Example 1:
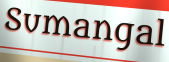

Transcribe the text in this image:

Sumangal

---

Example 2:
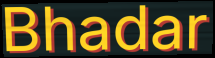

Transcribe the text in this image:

Bhadar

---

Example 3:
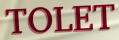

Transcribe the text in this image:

TOLET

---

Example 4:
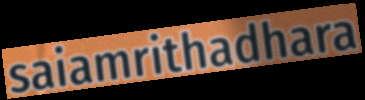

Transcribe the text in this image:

saiamrithadhara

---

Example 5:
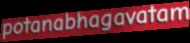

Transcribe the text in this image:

potanabhagavatam